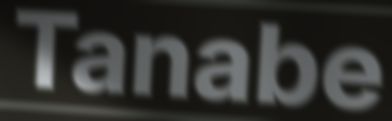
Tanabe